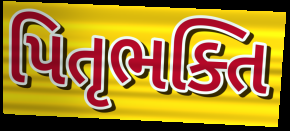
પિતૃભક્તિ